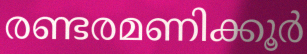
രണ്ടരമണിക്കൂർ